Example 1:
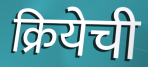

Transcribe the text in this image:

क्रियेची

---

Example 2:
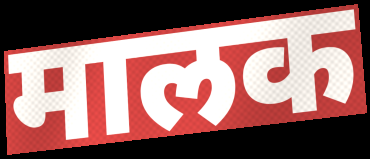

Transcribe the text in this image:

मालक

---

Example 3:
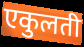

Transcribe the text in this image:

एकुलती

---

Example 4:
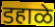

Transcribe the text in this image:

डहाळे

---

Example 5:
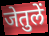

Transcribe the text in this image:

जेतुलें